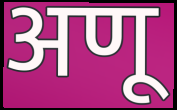
अणू